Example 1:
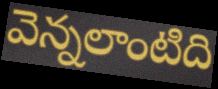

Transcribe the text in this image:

వెన్నలాంటిది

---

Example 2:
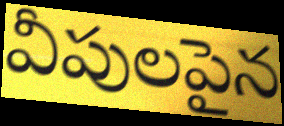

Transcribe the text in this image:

వీపులపైన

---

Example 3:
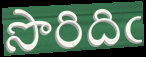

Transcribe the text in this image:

సొరిదిఁ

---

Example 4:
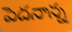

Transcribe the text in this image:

పెదనాన్న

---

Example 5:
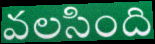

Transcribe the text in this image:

వలసింది